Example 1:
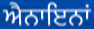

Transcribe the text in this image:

ਐਨਾਇਨਾਂ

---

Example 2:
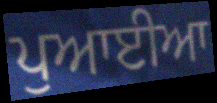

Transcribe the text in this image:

ਪੁਆਈਆ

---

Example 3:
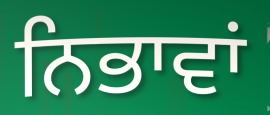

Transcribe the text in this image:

ਨਿਭਾਵਾਂ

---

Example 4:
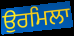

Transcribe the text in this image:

ਉਰਮਿਲਾ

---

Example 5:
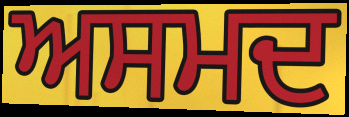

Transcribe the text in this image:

ਅਸਮਦ